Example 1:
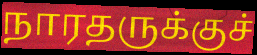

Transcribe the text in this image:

நாரதருக்குச்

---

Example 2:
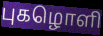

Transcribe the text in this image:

புகழொளி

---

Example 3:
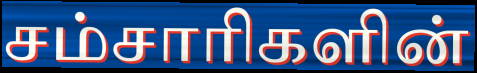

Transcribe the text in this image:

சம்சாரிகளின்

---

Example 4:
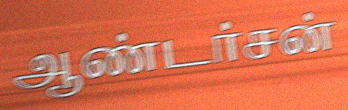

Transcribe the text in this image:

ஆண்டர்சன்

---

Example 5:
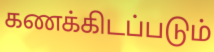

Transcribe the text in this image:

கணக்கிடப்படும்